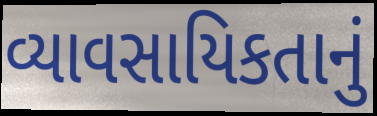
વ્યાવસાયિકતાનું